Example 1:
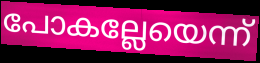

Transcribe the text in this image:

പോകല്ലേയെന്ന്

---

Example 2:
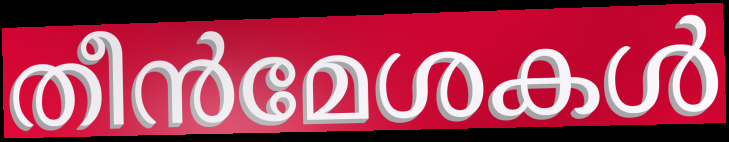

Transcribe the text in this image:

തീൻമേശകൾ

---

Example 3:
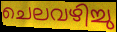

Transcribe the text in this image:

ചെലവഴിച്ചു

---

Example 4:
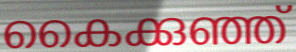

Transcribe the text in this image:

കൈക്കുഞ്ഞ്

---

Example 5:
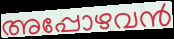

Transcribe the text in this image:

അപ്പോഴവൻ